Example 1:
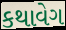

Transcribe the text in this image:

કથાવેગ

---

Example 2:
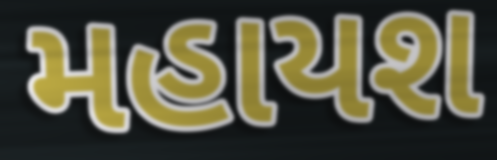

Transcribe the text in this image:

મહાયશ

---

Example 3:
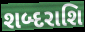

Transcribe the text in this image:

શબ્દરાશિ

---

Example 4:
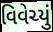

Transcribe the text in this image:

વિવેચ્યું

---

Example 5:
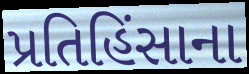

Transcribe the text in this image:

પ્રતિહિંસાના